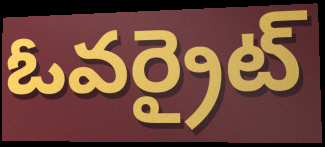
ఓవర్రైట్